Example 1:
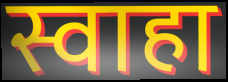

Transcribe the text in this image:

स्वाहा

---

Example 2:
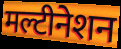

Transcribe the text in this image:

मल्टीनेशन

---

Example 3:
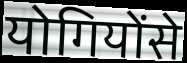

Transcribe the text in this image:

योगियोंसे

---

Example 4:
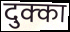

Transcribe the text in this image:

दुक्‍का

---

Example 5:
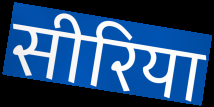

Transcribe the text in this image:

सीरिया